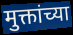
मुक्तांच्या